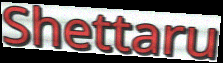
Shettaru